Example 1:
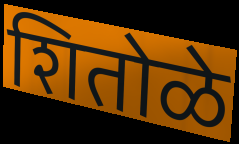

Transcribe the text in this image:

शितोळे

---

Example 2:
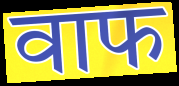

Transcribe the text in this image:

वाफ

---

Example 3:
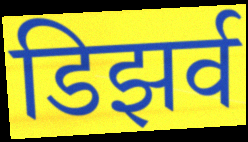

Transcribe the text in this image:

डिझर्व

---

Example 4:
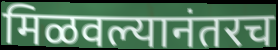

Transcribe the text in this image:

मिळवल्यानंतरच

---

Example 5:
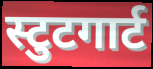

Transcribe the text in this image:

स्टुटगार्ट